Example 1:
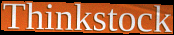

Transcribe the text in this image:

Thinkstock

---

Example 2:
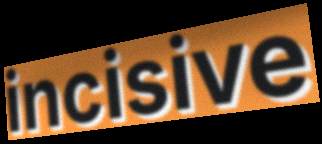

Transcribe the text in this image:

incisive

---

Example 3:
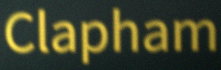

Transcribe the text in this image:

Clapham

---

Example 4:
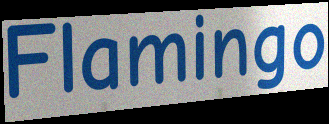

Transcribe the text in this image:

Flamingo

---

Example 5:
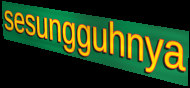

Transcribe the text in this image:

sesungguhnya